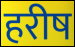
हरीष